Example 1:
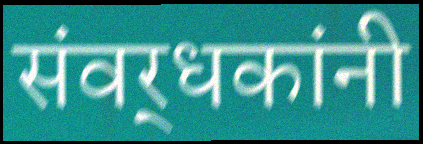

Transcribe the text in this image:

संवर्धकांनी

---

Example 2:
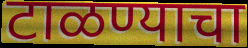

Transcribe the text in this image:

टाळण्याचा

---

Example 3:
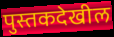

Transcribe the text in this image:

पुस्तकदेखील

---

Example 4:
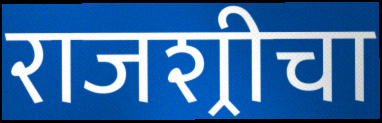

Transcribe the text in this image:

राजश्रीचा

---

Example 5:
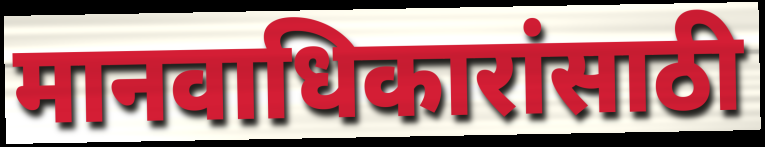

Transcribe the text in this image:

मानवाधिकारांसाठी